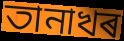
তানাখৰ